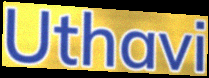
Uthavi